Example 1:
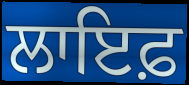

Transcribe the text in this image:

ਲਾਇਫ਼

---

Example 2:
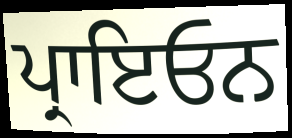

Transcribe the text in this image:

ਪ੍ਰਾਇਓਨ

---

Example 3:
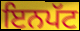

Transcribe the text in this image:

ਇਨਪੱਟ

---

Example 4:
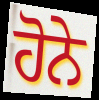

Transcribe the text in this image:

ਹੋਨੇ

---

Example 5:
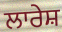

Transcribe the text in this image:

ਲਾਰੇਸ਼